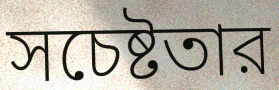
সচেষ্টতার